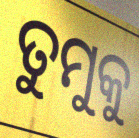
ତୁମୁକୁ